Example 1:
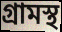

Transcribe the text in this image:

গ্রামস্থ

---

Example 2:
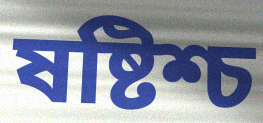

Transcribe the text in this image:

ষষ্টিশ্চ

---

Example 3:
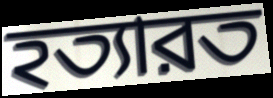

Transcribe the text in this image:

হত্যারত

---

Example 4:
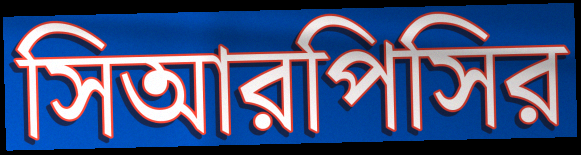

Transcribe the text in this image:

সিআরপিসির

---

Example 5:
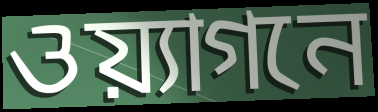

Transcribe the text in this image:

ওয়্যাগনে